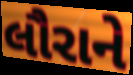
લૌરાને